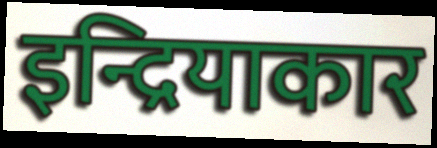
इन्द्रियाकार